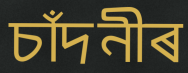
চাঁদনীৰ